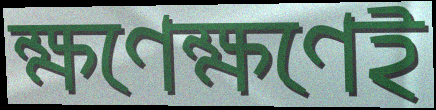
ক্ষণেক্ষণেই